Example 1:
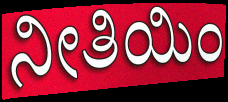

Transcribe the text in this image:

ನೀತಿಯಿಂ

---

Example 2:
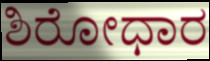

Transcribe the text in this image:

ಶಿರೋಧಾರ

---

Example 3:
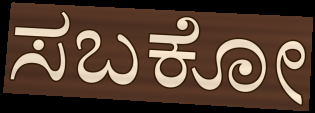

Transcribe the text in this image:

ಸಬಕೋ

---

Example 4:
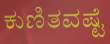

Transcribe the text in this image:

ಕುಣಿತವಷ್ಟೆ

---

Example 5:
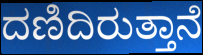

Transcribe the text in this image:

ದಣಿದಿರುತ್ತಾನೆ